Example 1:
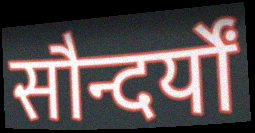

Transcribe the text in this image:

सौन्दर्यों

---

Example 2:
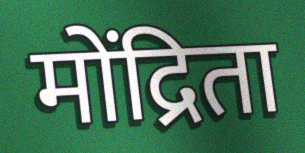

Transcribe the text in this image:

मोंद्रिता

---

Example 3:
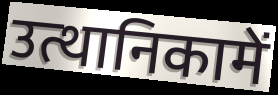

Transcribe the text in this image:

उत्थानिकामें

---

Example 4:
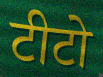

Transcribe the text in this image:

टीटो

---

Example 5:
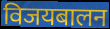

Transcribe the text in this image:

विजयबालन